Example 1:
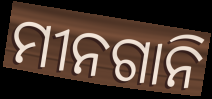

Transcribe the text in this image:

ମୀନଗାନି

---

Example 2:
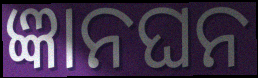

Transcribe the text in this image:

ଜ୍ଞାନଘନ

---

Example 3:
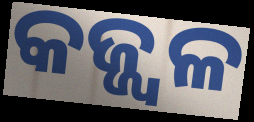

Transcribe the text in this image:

କଜ୍ଜ୍ୱଳ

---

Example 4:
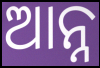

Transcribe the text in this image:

ଆନ୍ନ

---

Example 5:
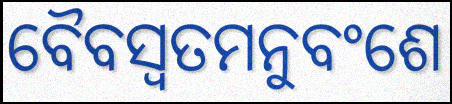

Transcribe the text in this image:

ବୈବସ୍ଵତମନୁବଂଶେ